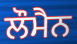
ਲੌਮੈਨ